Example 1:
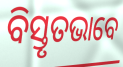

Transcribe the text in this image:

ବିସ୍ତୃତଭାବେ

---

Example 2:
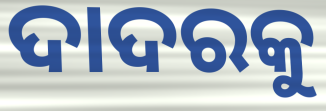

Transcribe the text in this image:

ଦାଦରକୁ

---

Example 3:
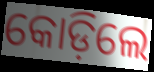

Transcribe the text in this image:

କୋଡ଼ିଲେ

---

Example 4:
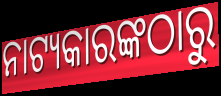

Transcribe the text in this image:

ନାଟ୍ୟକାରଙ୍କଠାରୁ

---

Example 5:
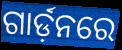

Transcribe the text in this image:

ଗାର୍ଡ଼ନରେ